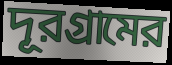
দূরগ্রামের